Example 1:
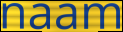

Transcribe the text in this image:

naam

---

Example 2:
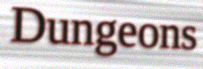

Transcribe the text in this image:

Dungeons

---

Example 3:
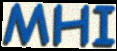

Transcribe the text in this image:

MHI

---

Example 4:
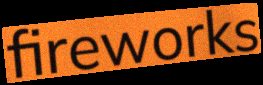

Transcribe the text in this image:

fireworks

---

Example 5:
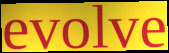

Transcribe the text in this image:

evolve